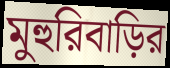
মুহুরিবাড়ির